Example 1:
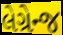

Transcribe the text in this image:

લેગ્રેન્જ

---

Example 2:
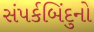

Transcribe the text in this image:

સંપર્કબિંદુનો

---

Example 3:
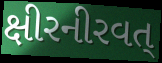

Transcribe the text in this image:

ક્ષીરનીરવત્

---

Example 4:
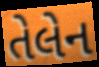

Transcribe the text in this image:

તેલેન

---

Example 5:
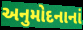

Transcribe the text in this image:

અનુમોદનાનાં